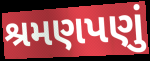
શ્રમણપણું